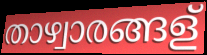
താഴ്വാരങ്ങള്